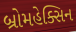
બ્રોમહેક્સિન